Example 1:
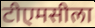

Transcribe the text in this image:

टीएमसीला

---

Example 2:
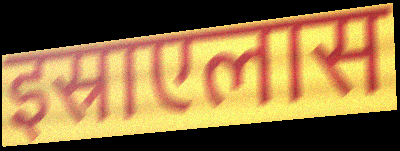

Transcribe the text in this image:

इस्राएलास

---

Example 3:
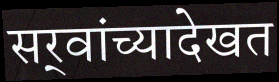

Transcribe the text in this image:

सर्वांच्यादेखत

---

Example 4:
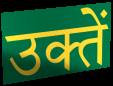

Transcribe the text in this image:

उक्तें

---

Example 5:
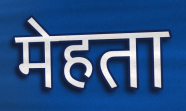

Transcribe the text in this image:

मेहता